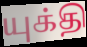
யுக்தி